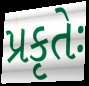
પ્રકૃતેઃ